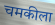
चमकीला